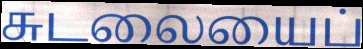
சுடலையைப்